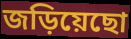
জড়িয়েছো